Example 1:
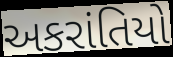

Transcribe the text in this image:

અકરાંતિયો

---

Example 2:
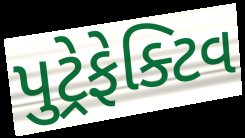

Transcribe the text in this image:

પુટ્રેફેક્ટિવ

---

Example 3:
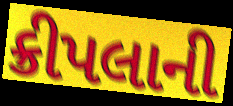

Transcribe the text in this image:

ક્રીપલાની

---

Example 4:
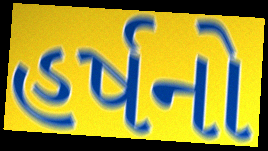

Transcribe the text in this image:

હર્ષનો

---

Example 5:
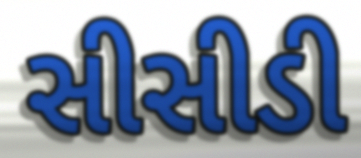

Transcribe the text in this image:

સીસીડી